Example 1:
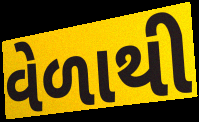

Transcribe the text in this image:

વેળાથી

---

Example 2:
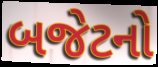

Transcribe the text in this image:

બજેટનો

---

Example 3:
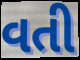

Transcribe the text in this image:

વતી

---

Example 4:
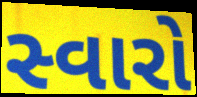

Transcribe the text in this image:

સ્વારો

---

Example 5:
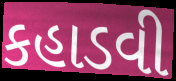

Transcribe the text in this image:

કહાડવી